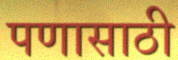
पणासाठी